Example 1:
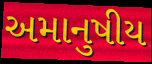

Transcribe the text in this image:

અમાનુષીય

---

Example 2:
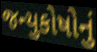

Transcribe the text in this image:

જન્યુકોષોનું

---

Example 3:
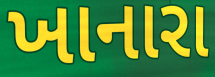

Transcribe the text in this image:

ખાનારા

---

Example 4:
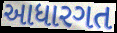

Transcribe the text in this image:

આધારગત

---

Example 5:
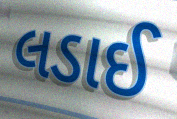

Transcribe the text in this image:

લડાઈ